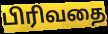
பிரிவதை